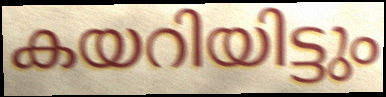
കയറിയിട്ടും